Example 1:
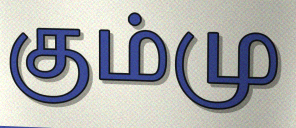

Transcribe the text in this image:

கும்மு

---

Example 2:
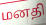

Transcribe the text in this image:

மனதி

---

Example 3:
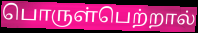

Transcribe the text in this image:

பொருள்பெற்றால்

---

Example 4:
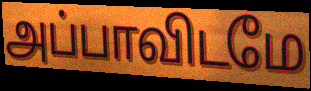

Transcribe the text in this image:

அப்பாவிடமே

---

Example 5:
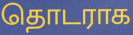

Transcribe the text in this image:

தொடராக